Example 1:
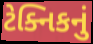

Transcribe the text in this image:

ટેક્નિકનું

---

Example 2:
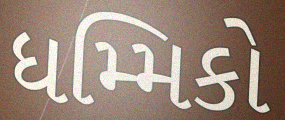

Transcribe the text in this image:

ધમ્મિકો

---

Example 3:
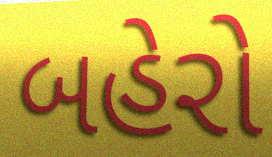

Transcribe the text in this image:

બહેરો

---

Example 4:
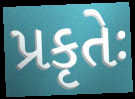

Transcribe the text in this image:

પ્રકૃતેઃ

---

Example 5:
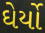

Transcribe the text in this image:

ઘેર્યો